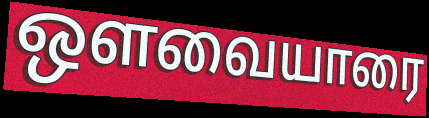
ஔவையாரை